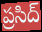
ప్రసిద్